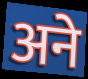
अने